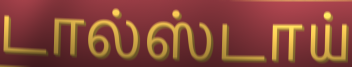
டால்ஸ்டாய்